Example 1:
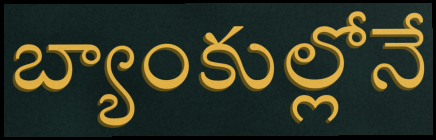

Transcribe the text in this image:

బ్యాంకుల్లోనే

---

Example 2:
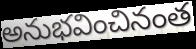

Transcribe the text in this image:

అనుభవించినంత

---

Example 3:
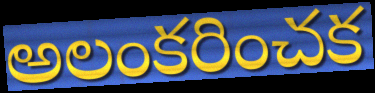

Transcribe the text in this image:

అలంకరించక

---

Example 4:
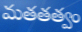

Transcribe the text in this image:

మతతత్వం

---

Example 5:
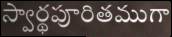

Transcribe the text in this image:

స్వార్థపూరితముగా